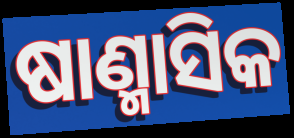
ଷାଣ୍ମାସିକ